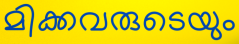
മിക്കവരുടെയും